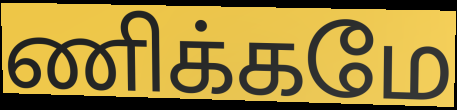
ணிக்கமே